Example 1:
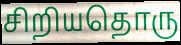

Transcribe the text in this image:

சிறியதொரு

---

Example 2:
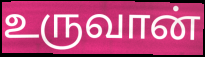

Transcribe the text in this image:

உருவான்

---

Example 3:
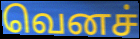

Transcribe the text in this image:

வெனச்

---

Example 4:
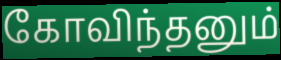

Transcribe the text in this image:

கோவிந்தனும்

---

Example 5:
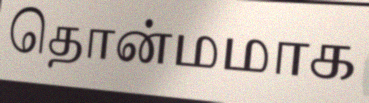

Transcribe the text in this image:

தொன்மமாக